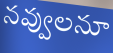
నవ్వులనూ